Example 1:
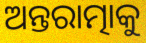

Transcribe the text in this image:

ଅନ୍ତରାତ୍ମାକୁ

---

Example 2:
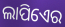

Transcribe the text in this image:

ଲାପିଏେର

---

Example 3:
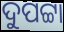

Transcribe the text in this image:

ଦୁପଟ୍ଟା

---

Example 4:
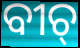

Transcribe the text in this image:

ବୀଚ୍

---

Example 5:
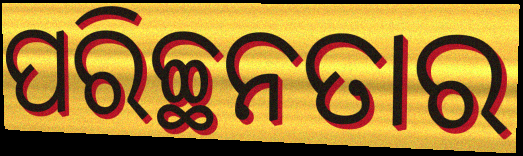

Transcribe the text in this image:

ପରିଚ୍ଛନତାର